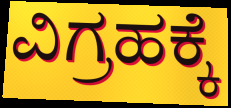
ವಿಗ್ರಹಕ್ಕೆ